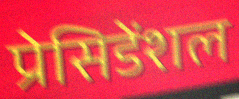
प्रेसिडेंशल